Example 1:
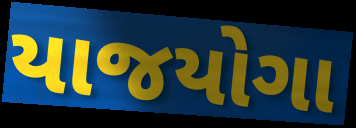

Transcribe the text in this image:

યાજયોગા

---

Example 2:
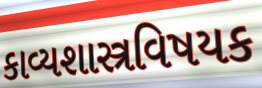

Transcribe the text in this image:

કાવ્યશાસ્ત્રવિષયક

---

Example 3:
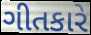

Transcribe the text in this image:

ગીતકારે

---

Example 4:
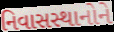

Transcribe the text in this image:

નિવાસસ્થાનોને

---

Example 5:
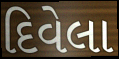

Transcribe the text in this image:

દિવેલા